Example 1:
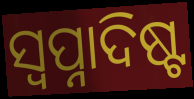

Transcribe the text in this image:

ସ୍ୱପ୍ନାଦିଷ୍ଟ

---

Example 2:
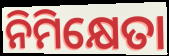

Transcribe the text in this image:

ନିମିକ୍ଷେତା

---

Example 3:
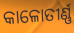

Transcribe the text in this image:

କାଳୋତୀର୍ଣ୍ଣ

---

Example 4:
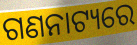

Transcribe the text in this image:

ଗଣନାଟ୍ୟରେ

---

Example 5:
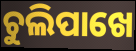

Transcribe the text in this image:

ଚୁଲିପାଖେ